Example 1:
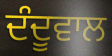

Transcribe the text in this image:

ਦੰਦੂਵਾਲ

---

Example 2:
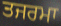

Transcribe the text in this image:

ਤਜਰਮਾ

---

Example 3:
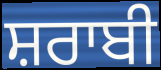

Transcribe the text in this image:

ਸ਼ਰਾਬੀ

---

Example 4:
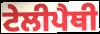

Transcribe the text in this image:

ਟੇਲੀਪੈਥੀ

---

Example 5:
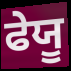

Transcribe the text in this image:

ਫੇਯੂ